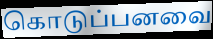
கொடுப்பனவை